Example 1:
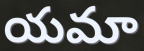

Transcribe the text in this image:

యమా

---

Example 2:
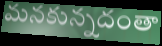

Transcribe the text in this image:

మనకున్నదంతా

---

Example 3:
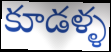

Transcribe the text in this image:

కూడళ్ళ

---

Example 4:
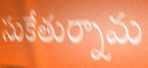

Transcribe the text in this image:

సుకేతుర్నామ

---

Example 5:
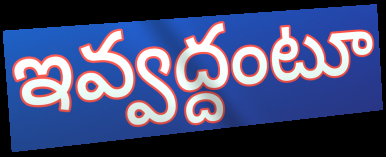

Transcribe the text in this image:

ఇవ్వద్దంటూ